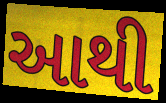
આથી